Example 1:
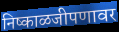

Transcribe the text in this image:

निष्काळजीपणावर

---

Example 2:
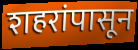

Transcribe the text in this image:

शहरांपासून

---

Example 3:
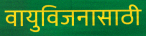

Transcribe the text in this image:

वायुविजनासाठी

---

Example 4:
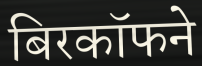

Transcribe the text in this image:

बिरकॉफने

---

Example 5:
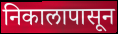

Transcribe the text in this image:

निकालापासून